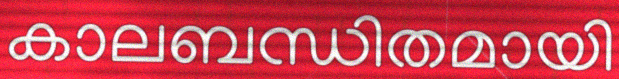
കാലബന്ധിതമായി